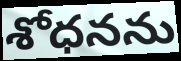
శోధనను